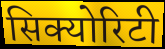
सिक्योरिटी